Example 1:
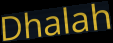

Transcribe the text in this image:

Dhalah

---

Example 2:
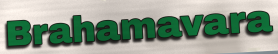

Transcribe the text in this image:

Brahamavara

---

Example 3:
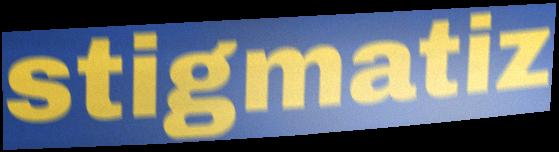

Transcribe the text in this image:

stigmatiz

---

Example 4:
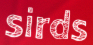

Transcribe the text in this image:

sirds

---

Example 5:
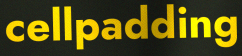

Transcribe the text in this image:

cellpadding